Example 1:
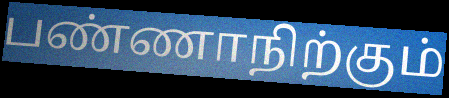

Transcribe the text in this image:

பண்ணாநிற்கும்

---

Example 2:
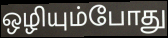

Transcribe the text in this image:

ஒழியும்போது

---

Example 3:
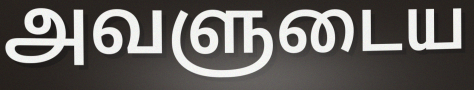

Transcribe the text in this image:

அவளுடைய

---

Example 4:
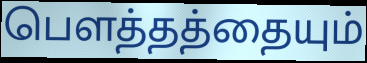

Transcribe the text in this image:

பெளத்தத்தையும்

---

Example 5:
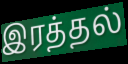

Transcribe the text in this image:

இரத்தல்